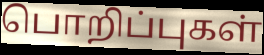
பொறிப்புகள்